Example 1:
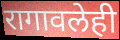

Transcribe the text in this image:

रागावलेही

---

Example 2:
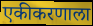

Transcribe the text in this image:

एकीकरणाला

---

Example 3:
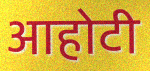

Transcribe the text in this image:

आहोटी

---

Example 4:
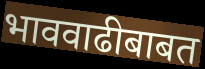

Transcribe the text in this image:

भाववाढीबाबत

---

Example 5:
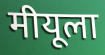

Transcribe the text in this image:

मीयूला